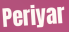
Periyar